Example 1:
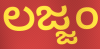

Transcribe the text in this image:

ಲಜ್ಜಂ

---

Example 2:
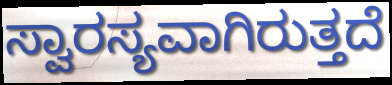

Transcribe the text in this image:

ಸ್ವಾರಸ್ಯವಾಗಿರುತ್ತದೆ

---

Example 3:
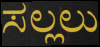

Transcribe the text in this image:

ಸಲ್ಲಲು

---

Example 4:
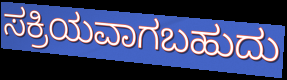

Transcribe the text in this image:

ಸಕ್ರಿಯವಾಗಬಹುದು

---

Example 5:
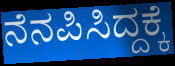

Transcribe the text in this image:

ನೆನಪಿಸಿದ್ದಕ್ಕೆ